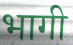
भागी